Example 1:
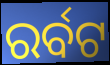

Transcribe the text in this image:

ରର୍ବଟ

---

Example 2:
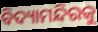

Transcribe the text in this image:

ବିଦ୍ୟାମନ୍ଦିରକୁ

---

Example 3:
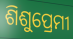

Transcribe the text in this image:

ଶିଶୁପ୍ରେମୀ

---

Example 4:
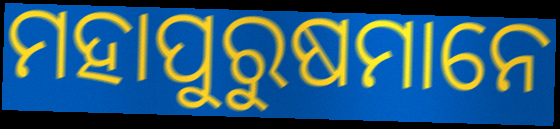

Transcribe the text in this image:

ମହାପୁରୁଷମାନେ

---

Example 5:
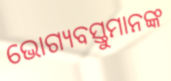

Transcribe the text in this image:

ଭୋଗ୍ୟବସ୍ତୁମାନଙ୍କ